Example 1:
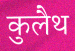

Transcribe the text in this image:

कुलैथ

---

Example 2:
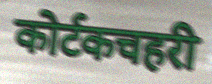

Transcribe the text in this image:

कोर्टकचहरी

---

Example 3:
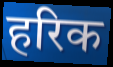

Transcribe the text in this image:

हरिक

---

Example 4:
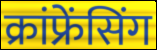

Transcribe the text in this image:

क्रांफ्रेंसिंग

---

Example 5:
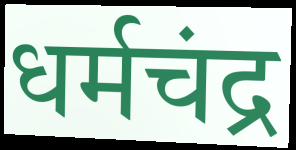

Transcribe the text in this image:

धर्मचंद्र